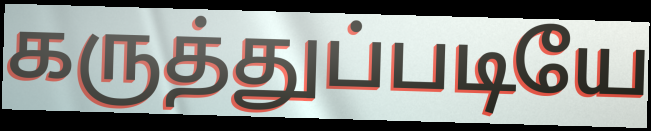
கருத்துப்படியே